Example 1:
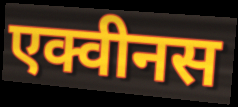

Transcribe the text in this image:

एक्वीनस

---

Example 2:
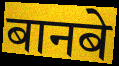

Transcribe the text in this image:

बानबे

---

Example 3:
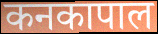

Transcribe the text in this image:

कनकापाल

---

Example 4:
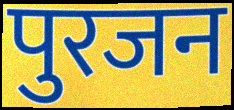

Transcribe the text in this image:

पुरजन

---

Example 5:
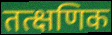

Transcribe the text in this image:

तत्क्षणिक